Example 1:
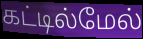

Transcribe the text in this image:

கட்டில்மேல்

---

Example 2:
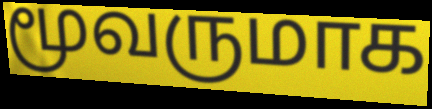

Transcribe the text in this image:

மூவருமாக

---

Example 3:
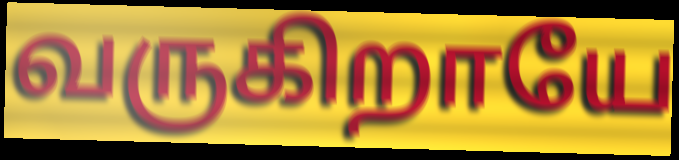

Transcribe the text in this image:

வருகிறாயே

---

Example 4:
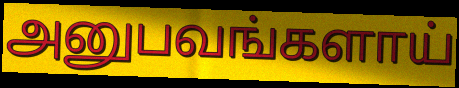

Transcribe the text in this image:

அனுபவங்களாய்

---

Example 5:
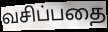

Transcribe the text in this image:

வசிப்பதை